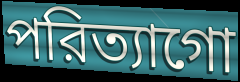
পরিত্যাগো